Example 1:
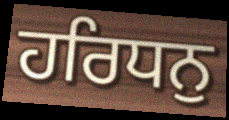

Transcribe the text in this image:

ਹਰਿਧਨੁ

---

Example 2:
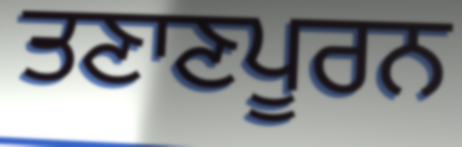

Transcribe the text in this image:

ਤਣਾਣਪੂਰਨ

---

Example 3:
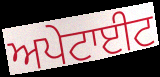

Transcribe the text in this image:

ਅਪੇਟਾਈਟ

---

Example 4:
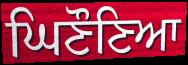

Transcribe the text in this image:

ਘਿਣੌਣਿਆ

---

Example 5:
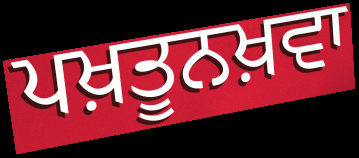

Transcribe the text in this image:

ਪਖ਼ਤੂਨਖ਼ਵਾ